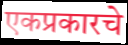
एकप्रकारचे